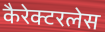
कैरेक्टरलेस